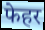
फेहर